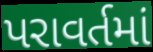
પરાવર્તમાં